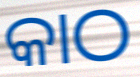
କାଠ